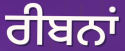
ਰੀਬਨਾਂ